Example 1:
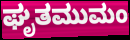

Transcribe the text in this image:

ಘೃತಮುಮಂ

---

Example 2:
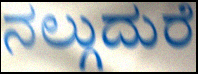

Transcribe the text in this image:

ನಲ್ಗುದುರೆ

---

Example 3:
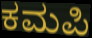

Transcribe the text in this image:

ಕಮಪಿ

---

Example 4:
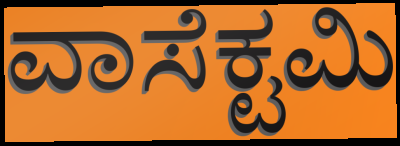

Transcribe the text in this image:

ವಾಸೆಕ್ಟಮಿ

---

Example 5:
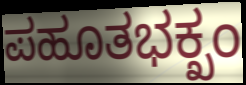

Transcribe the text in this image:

ಪಹೂತಭಕ್ಖಂ